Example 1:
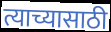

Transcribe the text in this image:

त्याच्यासाठी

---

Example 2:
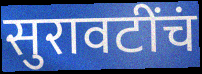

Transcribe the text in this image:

सुरावटींचं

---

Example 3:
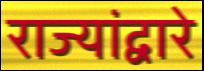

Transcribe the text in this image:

राज्यांद्वारे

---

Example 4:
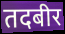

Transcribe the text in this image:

तदबीर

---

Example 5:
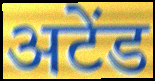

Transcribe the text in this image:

अटेंड